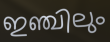
ഇഞ്ചിലും